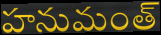
హనుమంత్